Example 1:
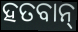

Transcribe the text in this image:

ହତବାନ୍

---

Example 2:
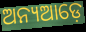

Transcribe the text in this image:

ଅନ୍ୟଆଡ଼େ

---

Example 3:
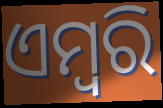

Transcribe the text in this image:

ଏମ୍ବରି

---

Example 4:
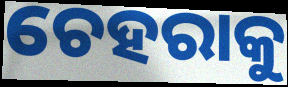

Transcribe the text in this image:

ଚେହରାକୁ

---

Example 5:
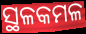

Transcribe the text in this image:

ସ୍ଥଳକମଳ